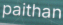
paithan